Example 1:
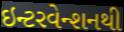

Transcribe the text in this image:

ઇન્ટરવેન્શનથી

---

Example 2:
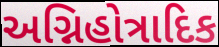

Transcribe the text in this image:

અગ્નિહોત્રાદિક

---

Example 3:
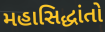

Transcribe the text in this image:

મહાસિદ્ધાંતો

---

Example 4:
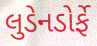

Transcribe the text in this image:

લુડેનડોર્ફે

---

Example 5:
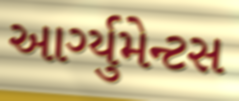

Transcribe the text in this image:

આર્ગ્યુમેન્ટસ